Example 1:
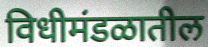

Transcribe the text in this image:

विधीमंडळातील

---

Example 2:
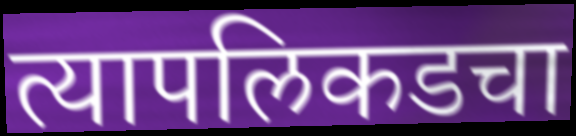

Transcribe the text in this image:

त्यापलिकडचा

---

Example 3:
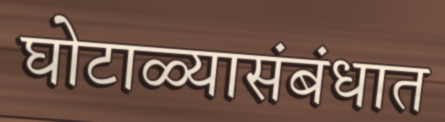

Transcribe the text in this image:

घोटाळ्यासंबंधात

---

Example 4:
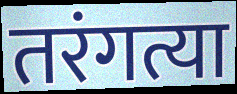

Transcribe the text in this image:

तरंगत्या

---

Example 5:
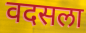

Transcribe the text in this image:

वदसला